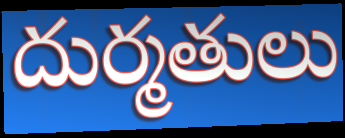
దుర్మతులు